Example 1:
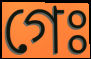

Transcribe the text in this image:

গেঃ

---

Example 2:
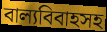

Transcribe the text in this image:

বাল্যবিবাহসহ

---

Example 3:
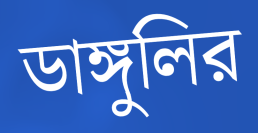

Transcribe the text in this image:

ডাঙ্গুলির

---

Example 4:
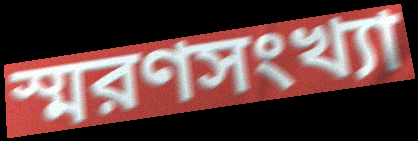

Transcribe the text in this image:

স্মরণসংখ্যা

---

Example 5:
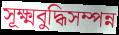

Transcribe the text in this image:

সূক্ষ্মবুদ্ধিসম্পন্ন